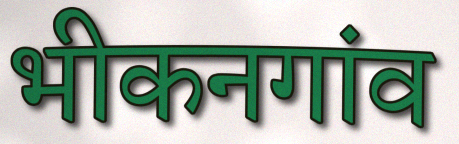
भीकनगांव